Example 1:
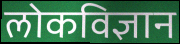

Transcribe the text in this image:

लोकविज्ञान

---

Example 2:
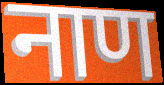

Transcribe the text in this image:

नाण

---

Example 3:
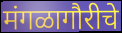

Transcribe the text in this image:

मंगळागौरीचे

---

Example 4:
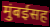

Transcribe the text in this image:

मुंबईसह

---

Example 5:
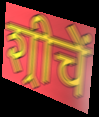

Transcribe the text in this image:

श्रीचें